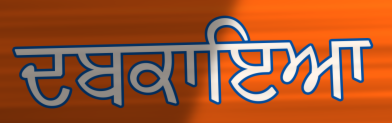
ਦਬਕਾਇਆ